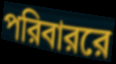
পরিবাররে